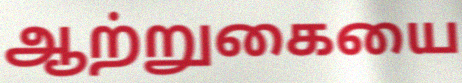
ஆற்றுகையை